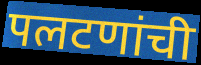
पलटणांची